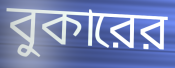
বুকারের